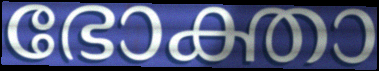
ഭോക്താ